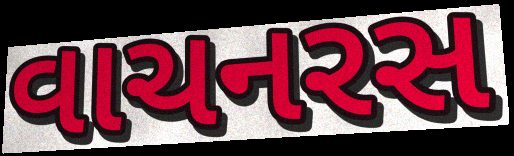
વાચનરસ